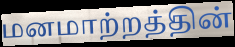
மனமாற்றத்தின்